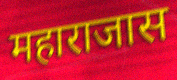
महाराजास